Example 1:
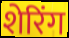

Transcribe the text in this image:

शेरिंग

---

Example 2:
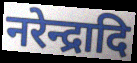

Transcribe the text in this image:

नरेन्द्रादि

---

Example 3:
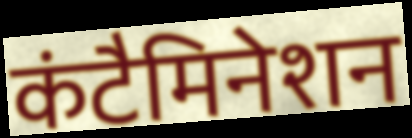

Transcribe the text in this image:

कंटैमिनेशन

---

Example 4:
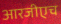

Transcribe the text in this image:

आरजीएच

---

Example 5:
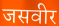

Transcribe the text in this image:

जसवीर